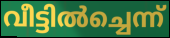
വീട്ടിൽച്ചെന്ന്